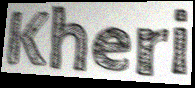
Kheri